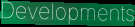
Developments